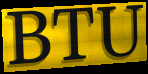
BTU